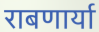
राबणार्या